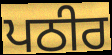
ਪਠੀਰ